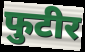
फुटीर